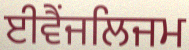
ਈਵੈਂਜਲਿਜਮ